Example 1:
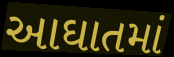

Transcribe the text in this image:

આઘાતમાં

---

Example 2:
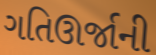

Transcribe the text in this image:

ગતિઊર્જાની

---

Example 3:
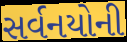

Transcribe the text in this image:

સર્વનયોની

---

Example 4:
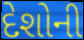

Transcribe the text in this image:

દેશોની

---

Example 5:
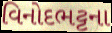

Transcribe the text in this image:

વિનોદભટ્ટના